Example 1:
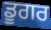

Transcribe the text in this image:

ਡੂਗਰ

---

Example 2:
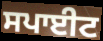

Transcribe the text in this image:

ਸਪਾਈਟ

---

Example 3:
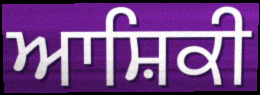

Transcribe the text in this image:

ਆਸ਼ਿਕੀ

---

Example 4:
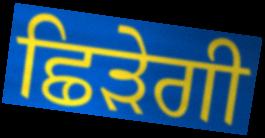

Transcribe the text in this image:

ਛਿੜੇਗੀ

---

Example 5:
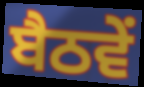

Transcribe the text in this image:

ਬੈਠਵੇਂ